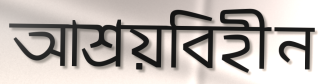
আশ্রয়বিহীন